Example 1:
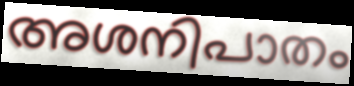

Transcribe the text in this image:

അശനിപാതം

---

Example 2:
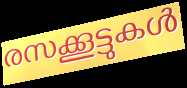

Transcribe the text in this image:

രസക്കൂട്ടുകൾ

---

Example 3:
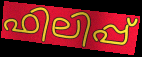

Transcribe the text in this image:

ഫിലിപ്പ്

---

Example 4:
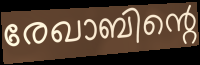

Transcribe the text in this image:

രേഖാബിന്റെ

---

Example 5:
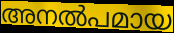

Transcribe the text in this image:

അനൽപമായ